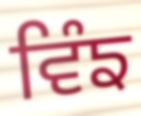
ਵਿੰਙ